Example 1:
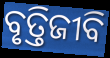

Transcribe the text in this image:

ବୃତ୍ତିଜୀବି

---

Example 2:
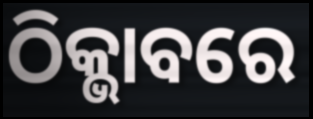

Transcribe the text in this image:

ଠିକ୍ଭାବରେ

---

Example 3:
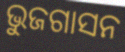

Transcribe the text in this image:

ଭୁଜଗାସନ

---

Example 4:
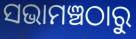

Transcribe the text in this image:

ସଭାମଞ୍ଚଠାରୁ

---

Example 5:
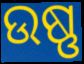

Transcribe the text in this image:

ଉଷ୍ଣ